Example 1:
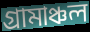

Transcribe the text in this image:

গ্রামাঞ্চল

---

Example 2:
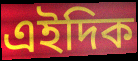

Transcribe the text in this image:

এইদিক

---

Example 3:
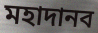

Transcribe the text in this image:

মহাদানব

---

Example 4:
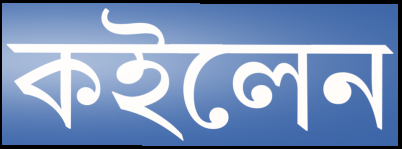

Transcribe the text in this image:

কইলেন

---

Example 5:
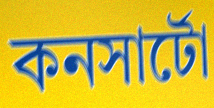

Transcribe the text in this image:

কনসার্টো